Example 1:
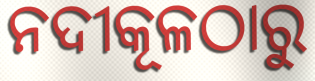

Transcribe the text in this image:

ନଦୀକୂଳଠାରୁ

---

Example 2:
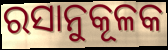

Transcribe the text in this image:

ରସାନୁକୂଳକ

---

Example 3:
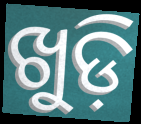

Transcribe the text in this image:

ଖୁଡ଼ି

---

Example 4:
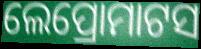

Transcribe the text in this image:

ଲେପ୍ରୋମାଟସ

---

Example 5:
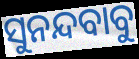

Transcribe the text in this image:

ସୁନନ୍ଦବାବୁ